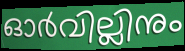
ഓർവില്ലിനും